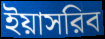
ইয়াসরিব